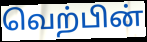
வெற்பின்